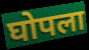
घोपला